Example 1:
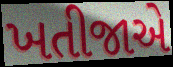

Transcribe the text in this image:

ખતીજાએ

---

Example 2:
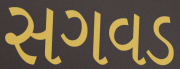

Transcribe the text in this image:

સગવડ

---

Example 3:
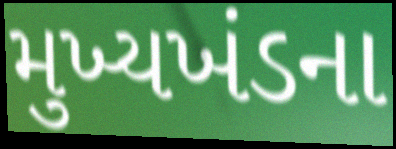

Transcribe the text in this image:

મુખ્યખંડના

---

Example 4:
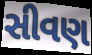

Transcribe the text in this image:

સીવણ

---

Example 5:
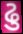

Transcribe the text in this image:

ઢુ